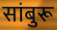
सांबुरू